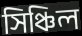
সিঞ্চিল